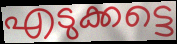
എടുക്കട്ടെ